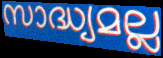
സാദ്ധ്യമല്ല